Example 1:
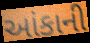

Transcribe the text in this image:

આંકાની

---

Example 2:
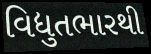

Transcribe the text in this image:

વિદ્યુતભારથી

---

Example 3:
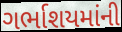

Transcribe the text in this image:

ગર્ભાશયમાંની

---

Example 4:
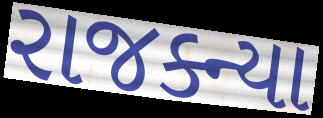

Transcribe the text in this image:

રાજક્ન્યા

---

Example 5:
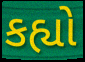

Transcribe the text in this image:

કહ્યો